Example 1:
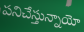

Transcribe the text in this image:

పనిచేస్తున్నాయో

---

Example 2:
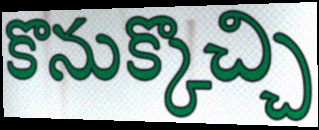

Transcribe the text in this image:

కొనుక్కొచ్చి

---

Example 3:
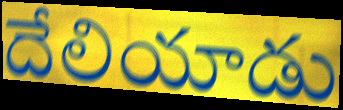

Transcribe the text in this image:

దేలియాడు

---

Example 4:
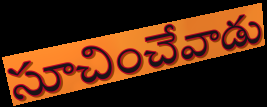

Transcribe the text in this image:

సూచించేవాడు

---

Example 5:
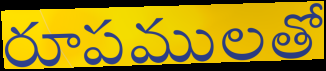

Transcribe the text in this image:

రూపములతో